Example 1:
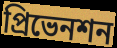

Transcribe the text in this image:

প্রিভেনশন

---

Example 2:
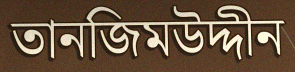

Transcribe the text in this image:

তানজিমউদ্দীন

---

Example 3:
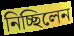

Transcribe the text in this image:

নিচ্ছিলেন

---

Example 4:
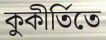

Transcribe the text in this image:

কুকীর্তিতে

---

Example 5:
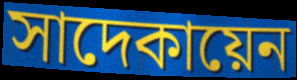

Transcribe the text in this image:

সাদেকায়েন